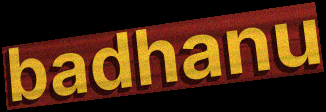
badhanu